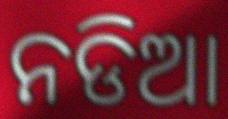
ନଡିଆ